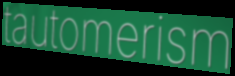
tautomerism